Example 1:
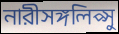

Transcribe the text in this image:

নারীসঙ্গলিপ্সু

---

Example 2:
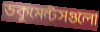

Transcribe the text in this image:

ডকুমেন্টসগুলো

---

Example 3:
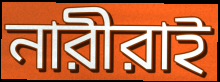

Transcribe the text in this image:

নারীরাই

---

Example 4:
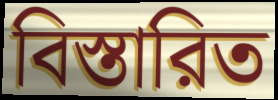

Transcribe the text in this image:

বিস্তারিত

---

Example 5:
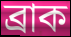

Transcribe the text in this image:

ব্রাক